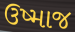
ઉષ્માજ